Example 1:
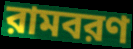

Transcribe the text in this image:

রামবরণ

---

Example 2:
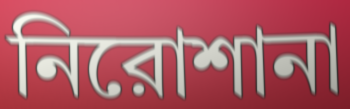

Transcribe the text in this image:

নিরোশানা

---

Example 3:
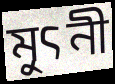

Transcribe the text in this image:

মুৎনী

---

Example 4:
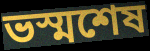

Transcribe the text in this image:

ভস্মশেষ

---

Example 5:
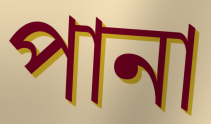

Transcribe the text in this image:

পানা